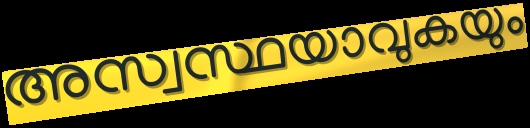
അസ്വസ്ഥയാവുകയും